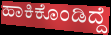
ಹಾಕಿಕೊಂಡಿದ್ದೆ